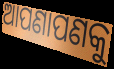
ଆପଣାପଣକୁ